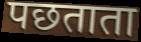
पछताता